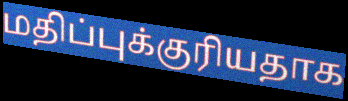
மதிப்புக்குரியதாக